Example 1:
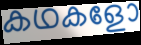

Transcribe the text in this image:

കഥകളോ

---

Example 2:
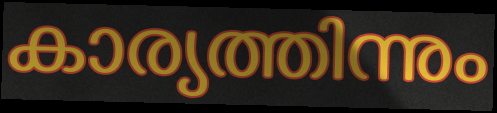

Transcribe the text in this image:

കാര്യത്തിന്നും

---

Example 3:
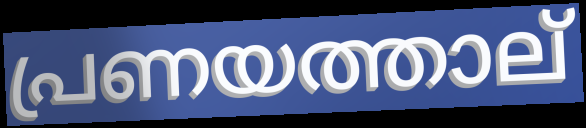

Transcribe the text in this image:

പ്രണയത്താല്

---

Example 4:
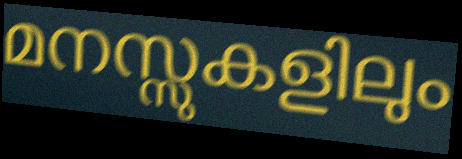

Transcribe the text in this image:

മനസ്സുകളിലും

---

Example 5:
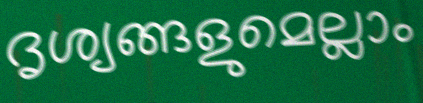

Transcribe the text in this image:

ദൃശ്യങ്ങളുമെല്ലാം